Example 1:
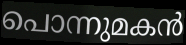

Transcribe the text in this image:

പൊന്നുമകൻ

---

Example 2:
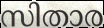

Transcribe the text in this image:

സിതാര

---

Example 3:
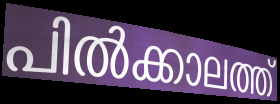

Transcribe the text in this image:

പിൽക്കാലത്ത്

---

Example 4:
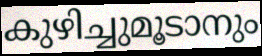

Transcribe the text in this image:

കുഴിച്ചുമൂടാനും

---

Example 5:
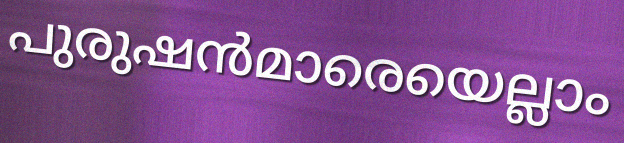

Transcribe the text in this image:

പുരുഷൻമാരെയെല്ലാം